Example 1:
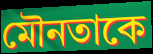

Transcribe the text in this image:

মৌনতাকে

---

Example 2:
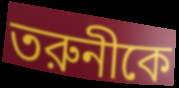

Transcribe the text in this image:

তরুনীকে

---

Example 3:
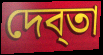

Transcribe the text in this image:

দেব্তা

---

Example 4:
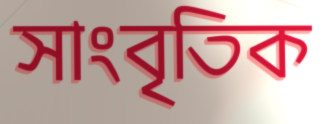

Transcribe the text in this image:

সাংবৃতিক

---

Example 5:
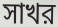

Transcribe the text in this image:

সাখর